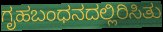
ಗೃಹಬಂಧನದಲ್ಲಿರಿಸಿತು